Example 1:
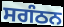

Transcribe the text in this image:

ਸਗੰਠਨ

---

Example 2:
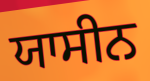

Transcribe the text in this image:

ਯਾਸੀਨ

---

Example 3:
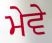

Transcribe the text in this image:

ਮੇਵੇ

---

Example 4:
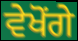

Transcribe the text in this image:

ਵੇਖੋਂਗੇ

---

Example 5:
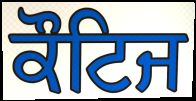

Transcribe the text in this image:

ਕੌਟਿਜ